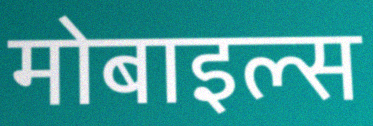
मोबाइल्स